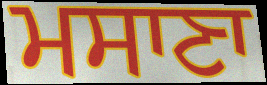
ਮਸਾਣਾ